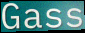
Gass